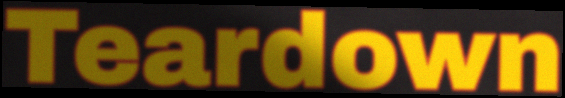
Teardown